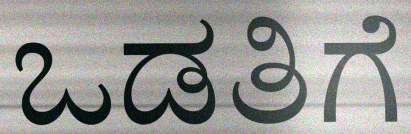
ಒಡತಿಗೆ